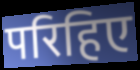
परिहिए